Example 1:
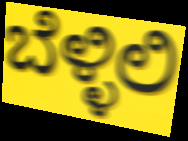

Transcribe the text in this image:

ಬೆಳ್ಳಿಲಿ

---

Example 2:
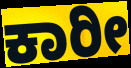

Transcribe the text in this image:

ಕಾರೀ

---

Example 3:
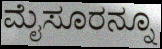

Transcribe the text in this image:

ಮೈಸೂರನ್ನೂ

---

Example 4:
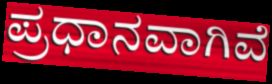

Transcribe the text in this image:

ಪ್ರಧಾನವಾಗಿವೆ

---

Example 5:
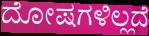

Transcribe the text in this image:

ದೋಷಗಳಿಲ್ಲದೆ